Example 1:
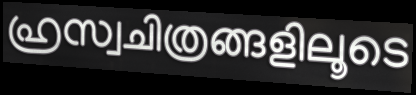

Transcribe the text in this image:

ഹ്രസ്വചിത്രങ്ങളിലൂടെ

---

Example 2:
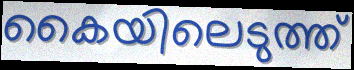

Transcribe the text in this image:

കൈയിലെടുത്ത്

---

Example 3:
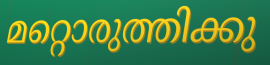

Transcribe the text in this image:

മറ്റൊരുത്തിക്കു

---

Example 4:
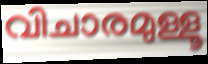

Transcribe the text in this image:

വിചാരമുള്ളൂ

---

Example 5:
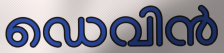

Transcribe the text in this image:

ഡെവിൻ